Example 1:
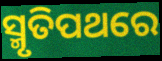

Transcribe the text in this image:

ସ୍ମୃତିପଥରେ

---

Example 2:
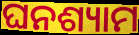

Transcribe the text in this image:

ଘନଶ୍ୟାମ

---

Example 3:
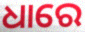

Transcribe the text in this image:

ଧାରେ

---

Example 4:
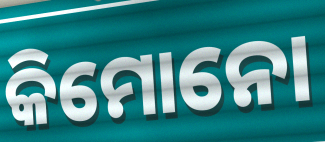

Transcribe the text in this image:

କିମୋନୋ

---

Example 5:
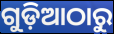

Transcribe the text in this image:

ଗୁଡ଼ିଆଠାରୁ